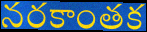
నరకాంతక